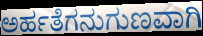
ಅರ್ಹತೆಗನುಗುಣವಾಗಿ